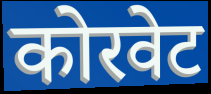
कोरवेट